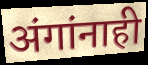
अंगांनाही